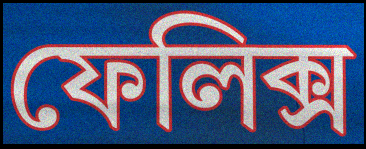
ফেলিক্স